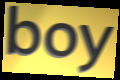
boy